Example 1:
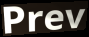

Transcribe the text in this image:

Prev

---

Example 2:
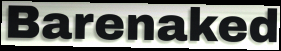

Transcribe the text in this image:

Barenaked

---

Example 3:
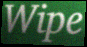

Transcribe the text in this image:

Wipe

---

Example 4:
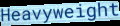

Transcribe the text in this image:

Heavyweight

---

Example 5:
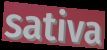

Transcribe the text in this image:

sativa